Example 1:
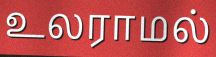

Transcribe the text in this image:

உலராமல்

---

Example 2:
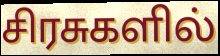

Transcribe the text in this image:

சிரசுகளில்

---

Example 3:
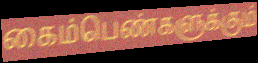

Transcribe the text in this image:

கைம்பெண்களுக்கும்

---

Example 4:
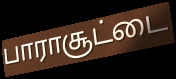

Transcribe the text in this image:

பாராசூட்டை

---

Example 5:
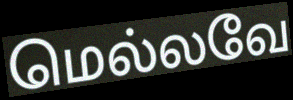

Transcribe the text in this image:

மெல்லவே